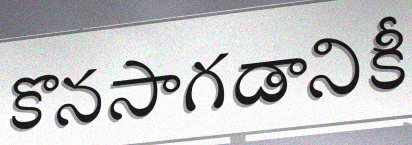
కొనసాగడానికీ